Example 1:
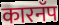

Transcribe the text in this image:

कारनॅप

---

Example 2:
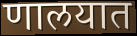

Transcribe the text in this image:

णालयात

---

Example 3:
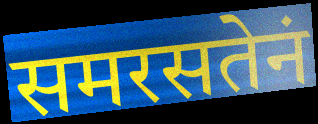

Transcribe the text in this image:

समरसतेनं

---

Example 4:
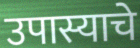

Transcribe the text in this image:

उपास्याचे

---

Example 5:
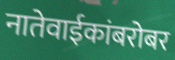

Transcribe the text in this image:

नातेवाईकांबरोबर